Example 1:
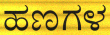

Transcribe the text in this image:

ಹಣಗಳ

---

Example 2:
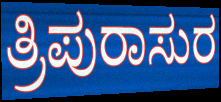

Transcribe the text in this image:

ತ್ರಿಪುರಾಸುರ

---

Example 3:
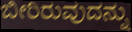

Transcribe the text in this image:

ಬೀರಿರುವುದನ್ನು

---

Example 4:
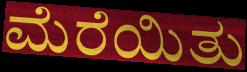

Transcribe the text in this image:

ಮೆರೆಯಿತು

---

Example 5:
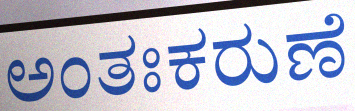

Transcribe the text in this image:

ಅಂತಃಕರುಣೆ